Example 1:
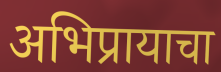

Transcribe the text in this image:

अभिप्रायाचा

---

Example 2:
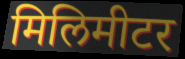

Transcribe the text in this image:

मिलिमीटर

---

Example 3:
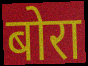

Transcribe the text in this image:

बोरा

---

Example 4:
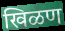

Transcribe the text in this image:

खिळण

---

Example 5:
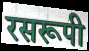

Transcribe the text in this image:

रसरूपी